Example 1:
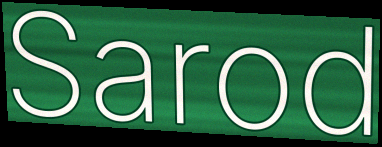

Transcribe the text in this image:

Sarod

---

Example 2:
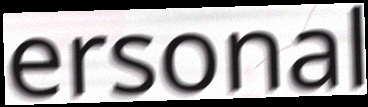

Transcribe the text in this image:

ersonal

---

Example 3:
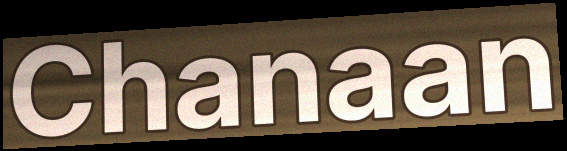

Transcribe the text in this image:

Chanaan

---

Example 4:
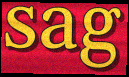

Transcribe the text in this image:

sag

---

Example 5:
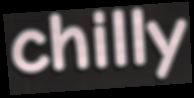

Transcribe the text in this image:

chilly